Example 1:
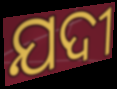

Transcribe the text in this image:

ଯଦୀ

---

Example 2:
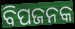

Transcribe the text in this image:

ବିପଜନକ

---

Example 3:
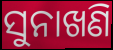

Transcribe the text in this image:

ସୁନାଖଣି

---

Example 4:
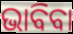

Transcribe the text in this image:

ଭାବିବା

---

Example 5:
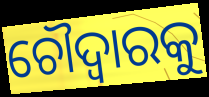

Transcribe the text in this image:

ଚୌଦ୍ୱାରକୁ